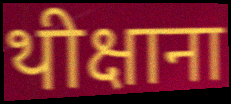
थीक्षाना